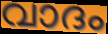
വാദം